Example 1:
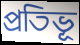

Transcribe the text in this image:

প্রতিভূ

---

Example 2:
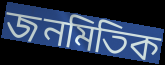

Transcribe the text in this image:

জনমিতিক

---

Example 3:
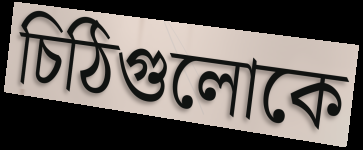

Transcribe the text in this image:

চিঠিগুলোকে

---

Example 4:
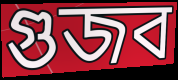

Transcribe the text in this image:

গুজব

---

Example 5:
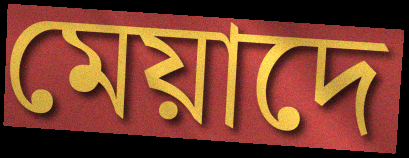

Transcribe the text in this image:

মেয়াদে